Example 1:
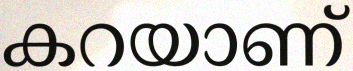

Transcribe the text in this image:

കറയാണ്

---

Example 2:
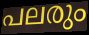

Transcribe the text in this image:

പലരും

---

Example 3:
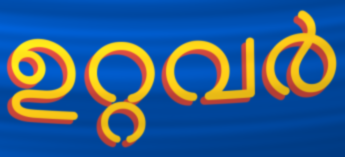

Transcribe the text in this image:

ഉറ്റവർ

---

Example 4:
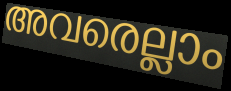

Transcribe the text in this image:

അവരെല്ലാം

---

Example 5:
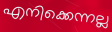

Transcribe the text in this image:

എനിക്കെന്നല്ല